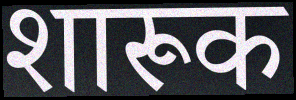
शारूक